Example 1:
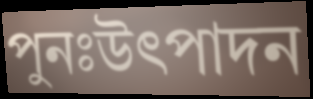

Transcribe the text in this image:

পুনঃউৎপাদন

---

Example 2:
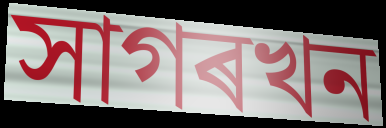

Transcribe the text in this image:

সাগৰখন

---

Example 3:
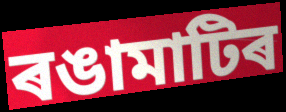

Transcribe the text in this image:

ৰঙামাটিৰ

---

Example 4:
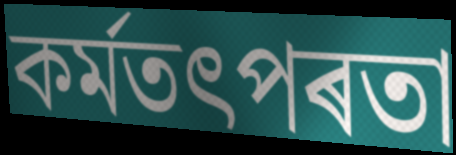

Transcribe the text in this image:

কৰ্মতৎপৰতা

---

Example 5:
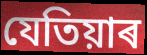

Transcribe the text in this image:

যেতিয়াৰ